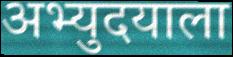
अभ्युदयाला